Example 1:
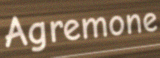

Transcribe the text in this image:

Agremone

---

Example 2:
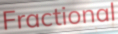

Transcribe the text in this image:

Fractional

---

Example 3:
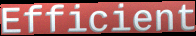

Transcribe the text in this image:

Efficient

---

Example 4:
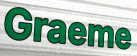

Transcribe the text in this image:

Graeme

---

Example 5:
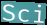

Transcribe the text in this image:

Sci